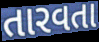
તારવતા